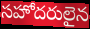
సహోదరులైన